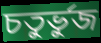
চতুৰ্ভুজ